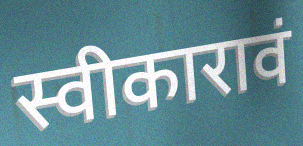
स्वीकारावं